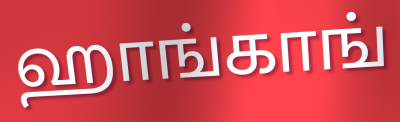
ஹாங்காங்